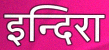
इन्दिरा